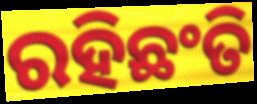
ରହିଛଂତି